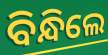
ବିନ୍ଧିଲେ